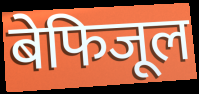
बेफिजूल